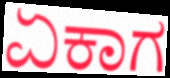
ಏಕಾಗ